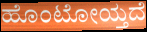
ಹೊಂಟೋಯ್ತದೆ